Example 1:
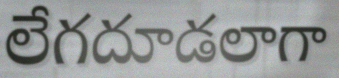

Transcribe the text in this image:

లేగదూడలాగా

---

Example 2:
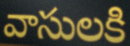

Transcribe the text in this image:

వాసులకి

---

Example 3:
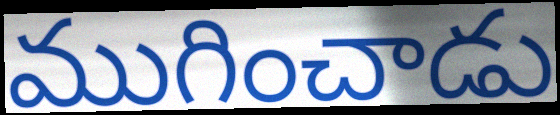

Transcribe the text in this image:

ముగించాడు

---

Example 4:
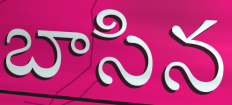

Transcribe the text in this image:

బాసిన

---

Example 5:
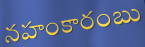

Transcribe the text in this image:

నహంకారంబు